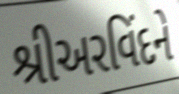
શ્રીઅરવિંદને